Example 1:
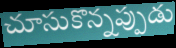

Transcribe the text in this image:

చూసుకొన్నప్పుడు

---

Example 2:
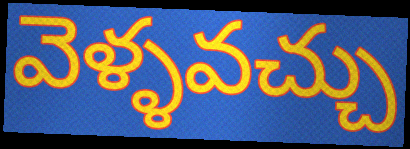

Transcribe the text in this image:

వెళ్ళవచ్చు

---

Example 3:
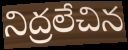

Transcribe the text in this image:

నిద్రలేచిన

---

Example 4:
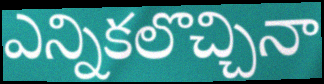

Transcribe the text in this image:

ఎన్నికలొచ్చినా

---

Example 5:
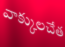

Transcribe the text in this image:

వాక్కులచేత